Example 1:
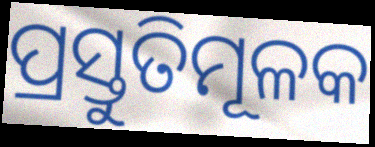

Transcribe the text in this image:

ପ୍ରସ୍ତୁତିମୂଳକ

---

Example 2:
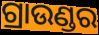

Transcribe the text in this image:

ଗ୍ରାଉଣ୍ଡର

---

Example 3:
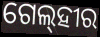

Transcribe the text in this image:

ଗେଲ୍‌ହୀର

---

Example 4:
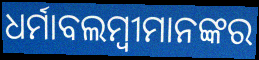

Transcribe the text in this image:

ଧର୍ମାବଲମ୍ବୀମାନଙ୍କର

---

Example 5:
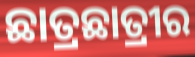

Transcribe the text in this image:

ଛାତ୍ରଛାତ୍ରୀର